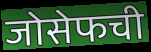
जोसेफची